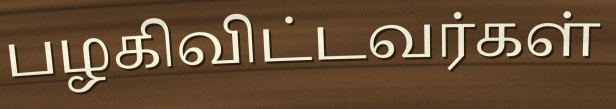
பழகிவிட்டவர்கள்